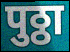
पुठ्ठा